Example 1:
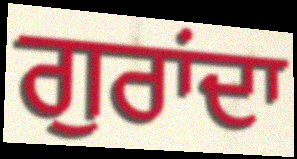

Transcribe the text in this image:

ਗੁਰਾਂਦਾ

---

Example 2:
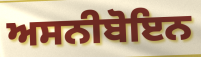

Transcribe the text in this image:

ਅਸਨੀਬੋਇਨ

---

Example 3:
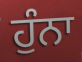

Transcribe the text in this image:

ਹੁੰਨਾ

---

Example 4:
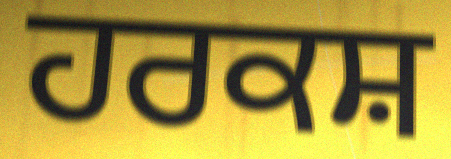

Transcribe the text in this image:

ਹਰਕਸ਼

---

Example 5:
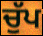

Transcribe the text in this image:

ਚੁੱਪ